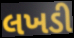
લખડી